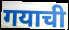
गयाची